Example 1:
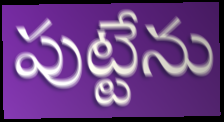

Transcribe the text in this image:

పుట్టేను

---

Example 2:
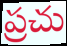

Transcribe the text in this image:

ప్రచు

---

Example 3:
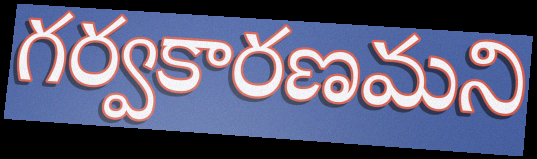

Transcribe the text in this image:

గర్వకారణమని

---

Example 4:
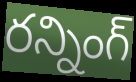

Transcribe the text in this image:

రన్నింగ్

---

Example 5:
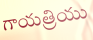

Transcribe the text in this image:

గాయత్రియు